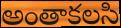
అంతాకలసి